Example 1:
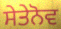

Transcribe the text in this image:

ਸੇਤੇਨੋਵ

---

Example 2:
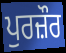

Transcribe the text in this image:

ਪੁਰਜ਼ੌਰ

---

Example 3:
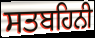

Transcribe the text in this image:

ਸਤਬਹਿਨੀ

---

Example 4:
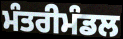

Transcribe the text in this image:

ਮੰਤਰੀਮੰਡਲ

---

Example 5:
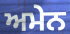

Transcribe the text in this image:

ਅਮੇਨ